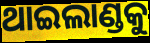
ଥାଇଲାଣ୍ଡକୁ